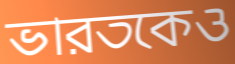
ভারতকেও